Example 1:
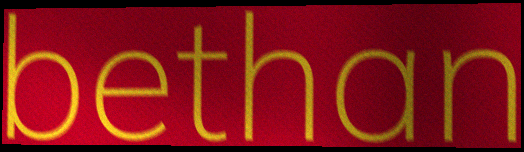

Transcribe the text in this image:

bethan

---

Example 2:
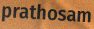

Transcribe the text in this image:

prathosam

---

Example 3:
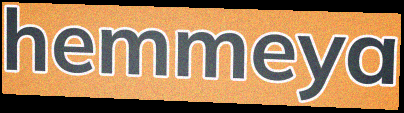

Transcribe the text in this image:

hemmeya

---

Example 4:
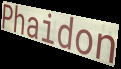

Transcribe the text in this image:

Phaidon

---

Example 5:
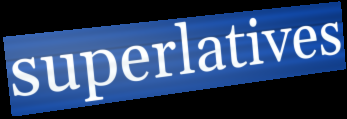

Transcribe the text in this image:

superlatives